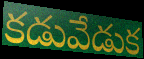
కడువేడుక